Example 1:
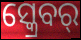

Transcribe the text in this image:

ସ୍କ୍ରେବର୍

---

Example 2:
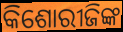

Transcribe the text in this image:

କିଶୋରୀଜିଙ୍କ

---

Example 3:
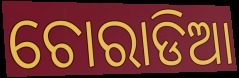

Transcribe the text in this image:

ଚୋରାଡିଆ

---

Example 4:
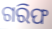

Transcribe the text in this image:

ଗରିଫ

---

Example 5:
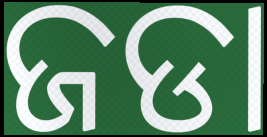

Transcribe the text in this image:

ଜଡା